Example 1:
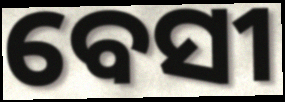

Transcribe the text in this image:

ବେସୀ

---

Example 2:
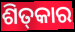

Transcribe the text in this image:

ଶିତ୍‍କାର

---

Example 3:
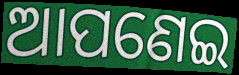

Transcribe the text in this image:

ଆପଣେଇ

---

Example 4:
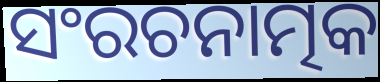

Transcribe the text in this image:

ସଂରଚନାତ୍ମକ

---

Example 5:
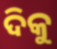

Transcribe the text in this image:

ଦିକୁ